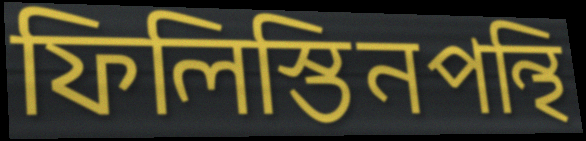
ফিলিস্তিনপন্থি